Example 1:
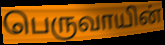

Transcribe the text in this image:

பெருவாயின்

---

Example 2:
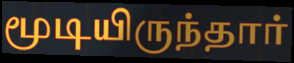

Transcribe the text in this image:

மூடியிருந்தார்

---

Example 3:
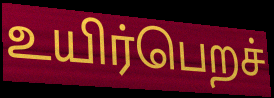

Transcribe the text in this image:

உயிர்பெறச்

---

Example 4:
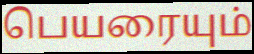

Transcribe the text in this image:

பெயரையும்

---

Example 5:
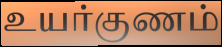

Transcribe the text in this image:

உயர்குணம்